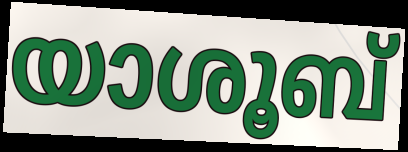
യാശൂബ്